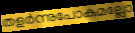
തളർന്നുപോകുമല്ലോ